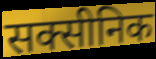
सक्सीनिक